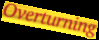
Overturning